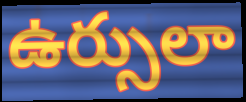
ఉర్సులా